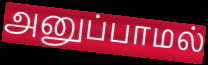
அனுப்பாமல்